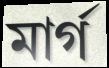
মাৰ্গ